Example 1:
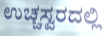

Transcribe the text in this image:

ಉಚ್ಚಸ್ವರದಲ್ಲಿ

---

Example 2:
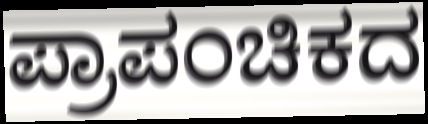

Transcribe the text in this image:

ಪ್ರಾಪಂಚಿಕದ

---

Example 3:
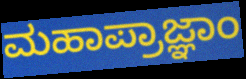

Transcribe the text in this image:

ಮಹಾಪ್ರಾಜ್ಞಾಂ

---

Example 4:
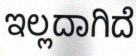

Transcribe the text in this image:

ಇಲ್ಲದಾಗಿದೆ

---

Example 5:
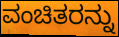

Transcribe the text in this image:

ವಂಚಿತರನ್ನು